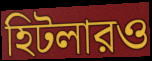
হিটলারও